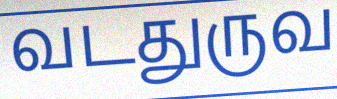
வடதுருவ